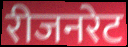
रीजनरेट